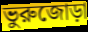
ভুরুজোড়া